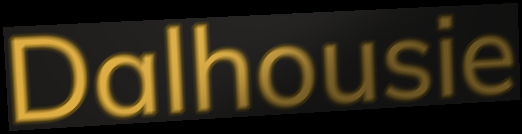
Dalhousie